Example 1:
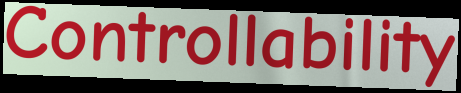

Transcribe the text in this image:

Controllability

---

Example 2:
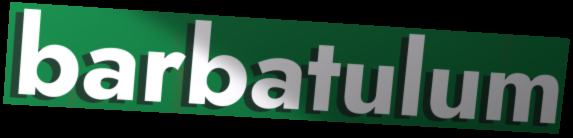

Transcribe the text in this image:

barbatulum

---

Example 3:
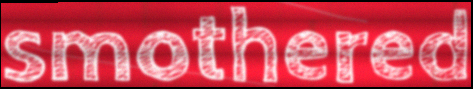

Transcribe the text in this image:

smothered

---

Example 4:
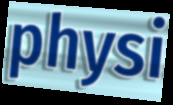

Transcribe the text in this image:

physi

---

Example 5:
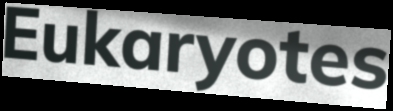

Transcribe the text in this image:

Eukaryotes